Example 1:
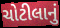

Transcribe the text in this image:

ચોટીલાનું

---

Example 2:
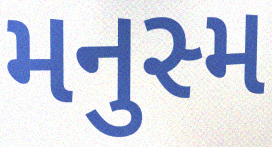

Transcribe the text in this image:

મનુસ્મ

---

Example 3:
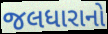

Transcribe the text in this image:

જલધારાનો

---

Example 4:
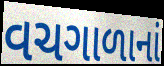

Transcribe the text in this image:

વચગાળાનાં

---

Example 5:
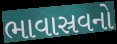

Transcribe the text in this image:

ભાવાસ્રવનો